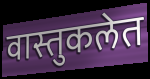
वास्तुकलेत